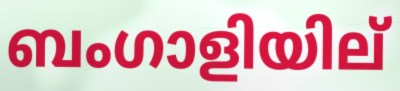
ബംഗാളിയില്